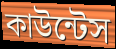
কাউন্টেস